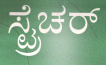
ಸ್ಟ್ರೆಚರ್